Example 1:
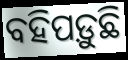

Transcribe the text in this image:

ବହିପଡ଼ୁଛି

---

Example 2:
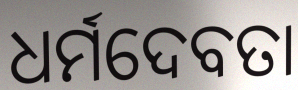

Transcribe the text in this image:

ଧର୍ମଦେବତା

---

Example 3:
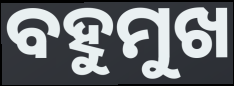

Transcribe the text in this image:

ବହୁମୁଖ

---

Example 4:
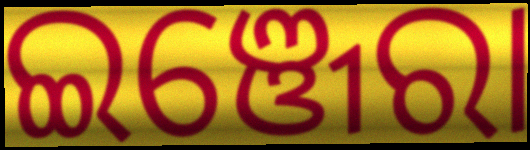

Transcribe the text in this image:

ଇଞ୍ଜେରା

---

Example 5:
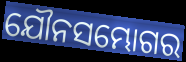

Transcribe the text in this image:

ଯୌନସମ୍ଭୋଗର